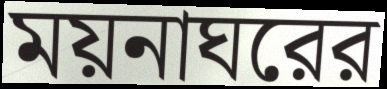
ময়নাঘরের